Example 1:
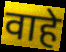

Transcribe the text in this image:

वाहे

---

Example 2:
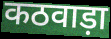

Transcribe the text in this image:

कठवाड़ा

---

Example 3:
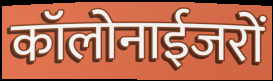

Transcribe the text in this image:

कॉलोनाईजरों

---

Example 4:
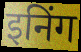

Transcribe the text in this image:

इनिंग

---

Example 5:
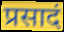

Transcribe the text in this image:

प्रसादं